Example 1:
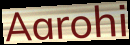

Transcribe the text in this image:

Aarohi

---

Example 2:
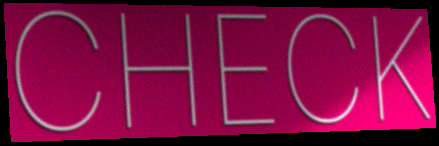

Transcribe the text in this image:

CHECK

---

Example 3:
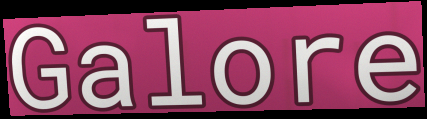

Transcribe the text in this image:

Galore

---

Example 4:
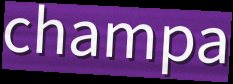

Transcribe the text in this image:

champa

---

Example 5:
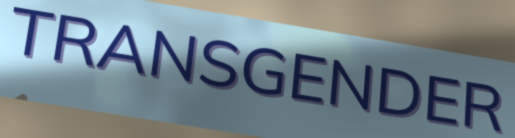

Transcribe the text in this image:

TRANSGENDER